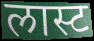
लास्ट